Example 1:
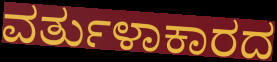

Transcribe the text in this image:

ವರ್ತುಳಾಕಾರದ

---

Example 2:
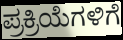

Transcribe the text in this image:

ಪ್ರಕ್ರಿಯೆಗಳಿಗೆ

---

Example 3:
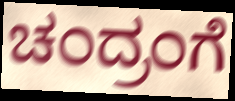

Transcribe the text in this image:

ಚಂದ್ರಂಗೆ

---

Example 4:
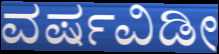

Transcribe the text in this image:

ವರ್ಷವಿಡೀ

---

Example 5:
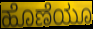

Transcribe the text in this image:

ಹೊಣೆಯೂ